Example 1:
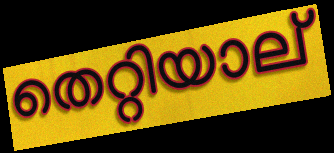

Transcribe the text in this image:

തെറ്റിയാല്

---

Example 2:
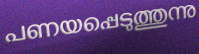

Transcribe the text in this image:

പണയപ്പെടുത്തുന്നു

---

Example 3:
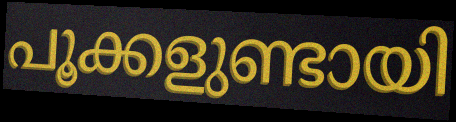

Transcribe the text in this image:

പൂക്കളുണ്ടായി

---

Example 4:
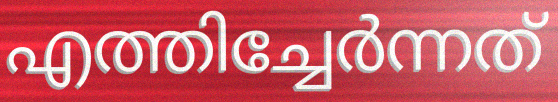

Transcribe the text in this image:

എത്തിച്ചേർന്നത്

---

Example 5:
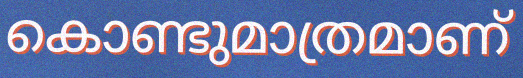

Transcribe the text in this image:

കൊണ്ടുമാത്രമാണ്